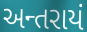
અન્તરાયં